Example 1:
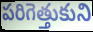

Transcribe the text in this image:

పరిగెత్తుకుని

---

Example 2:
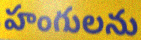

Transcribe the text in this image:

హంగులను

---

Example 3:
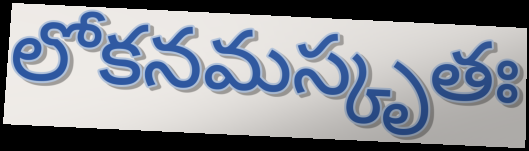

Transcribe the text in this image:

లోకనమస్కృతః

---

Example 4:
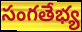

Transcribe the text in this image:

సంగతేభ్య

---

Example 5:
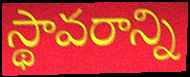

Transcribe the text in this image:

స్థావరాన్ని